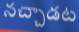
నచ్చాడట